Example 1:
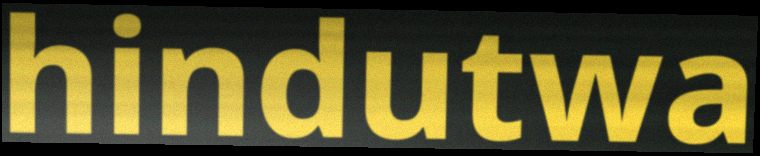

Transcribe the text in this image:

hindutwa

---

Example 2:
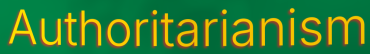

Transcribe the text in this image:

Authoritarianism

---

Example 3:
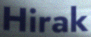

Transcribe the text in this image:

Hirak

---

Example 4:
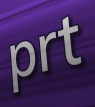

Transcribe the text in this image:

prt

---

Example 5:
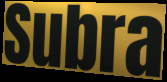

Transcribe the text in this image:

Subra